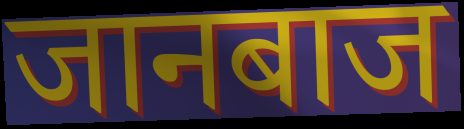
जानबाज